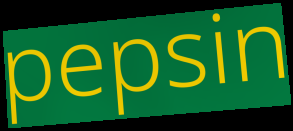
pepsin